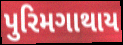
પુરિમગાથાય